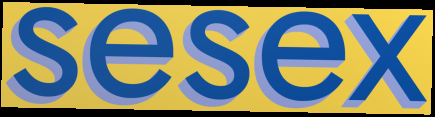
sesex